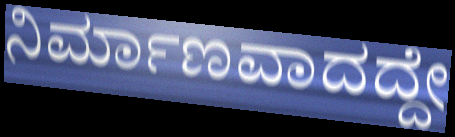
ನಿರ್ಮಾಣವಾದದ್ದೇ